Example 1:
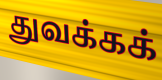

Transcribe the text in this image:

துவக்கக்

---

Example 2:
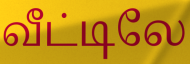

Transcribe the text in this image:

வீட்டிலே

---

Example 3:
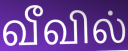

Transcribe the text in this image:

வீவில்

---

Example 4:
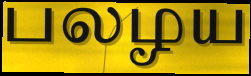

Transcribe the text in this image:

பலழய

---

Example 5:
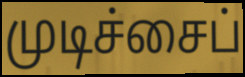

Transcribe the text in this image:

முடிச்சைப்